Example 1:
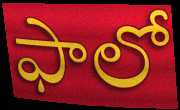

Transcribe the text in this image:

ఫాలో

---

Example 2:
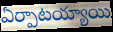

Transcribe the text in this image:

ఏర్పాటయ్యాయి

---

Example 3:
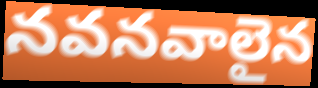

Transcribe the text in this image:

నవనవాలైన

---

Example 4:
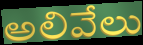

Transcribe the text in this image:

అలివేలు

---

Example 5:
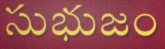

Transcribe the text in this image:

సుభుజం